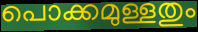
പൊക്കമുള്ളതും